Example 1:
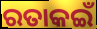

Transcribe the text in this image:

ରତାକଇଁ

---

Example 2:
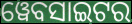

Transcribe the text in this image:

ୱେବସାଇଟର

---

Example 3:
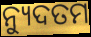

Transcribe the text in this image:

ନ୍ୟୁଦତମ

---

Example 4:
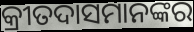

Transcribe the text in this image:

କ୍ରୀତଦାସମାନଙ୍କର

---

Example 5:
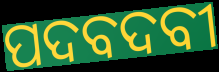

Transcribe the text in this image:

ପଦବଦବୀ